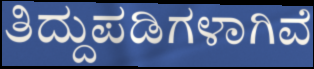
ತಿದ್ದುಪಡಿಗಳಾಗಿವೆ